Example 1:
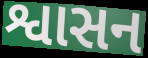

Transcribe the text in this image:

શ્વાસન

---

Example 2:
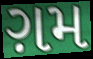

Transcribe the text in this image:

ગ઼મ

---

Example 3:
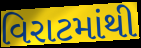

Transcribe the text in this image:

વિરાટમાંથી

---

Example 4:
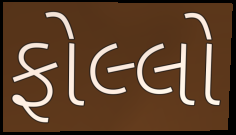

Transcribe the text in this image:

ફોલ્લો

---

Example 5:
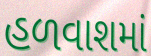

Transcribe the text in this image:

હળવાશમાં